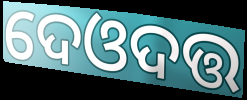
ଦେଓଦତ୍ତ